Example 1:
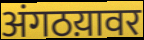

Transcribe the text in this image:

अंगठय़ावर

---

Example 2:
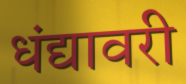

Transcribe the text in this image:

धंद्यावरी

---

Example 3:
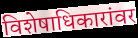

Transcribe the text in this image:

विशेषाधिकारांवर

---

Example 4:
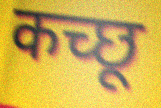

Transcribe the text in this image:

कच्छू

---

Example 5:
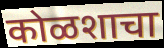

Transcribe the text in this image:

कोळशाचा